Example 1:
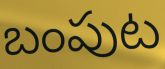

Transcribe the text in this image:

బంపుట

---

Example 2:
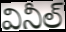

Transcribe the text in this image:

వినీల్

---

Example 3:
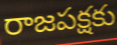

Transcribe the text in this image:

రాజపక్షకు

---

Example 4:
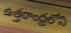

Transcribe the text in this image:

ఉత్తరాంధ్రలోని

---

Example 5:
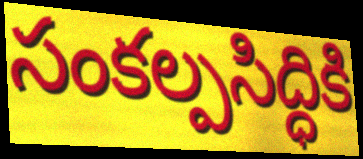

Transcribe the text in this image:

సంకల్పసిద్ధికి